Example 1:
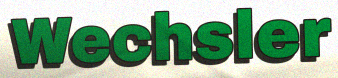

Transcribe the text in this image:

Wechsler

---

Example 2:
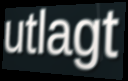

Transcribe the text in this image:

utlagt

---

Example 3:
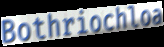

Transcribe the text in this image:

Bothriochloa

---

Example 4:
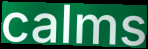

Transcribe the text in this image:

calms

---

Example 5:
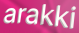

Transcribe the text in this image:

arakki